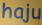
haju